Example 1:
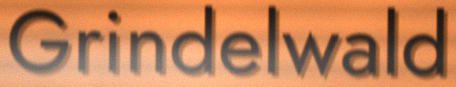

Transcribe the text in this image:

Grindelwald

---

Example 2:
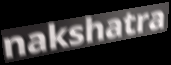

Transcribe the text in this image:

nakshatra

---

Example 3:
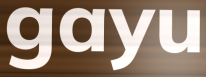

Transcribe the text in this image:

gayu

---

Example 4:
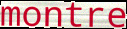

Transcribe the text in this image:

montre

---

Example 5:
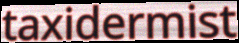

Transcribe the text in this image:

taxidermist